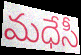
మధేసీ